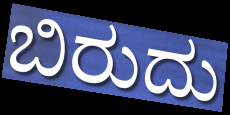
ಬಿರುದು